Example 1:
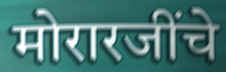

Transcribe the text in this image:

मोरारजींचे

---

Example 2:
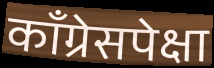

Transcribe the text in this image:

कॉंग्रेसपेक्षा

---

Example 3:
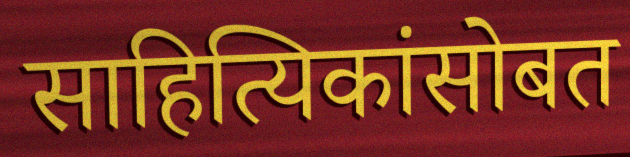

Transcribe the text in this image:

साहित्यिकांसोबत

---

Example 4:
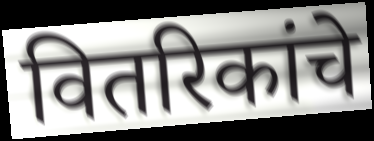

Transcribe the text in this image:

वितरिकांचे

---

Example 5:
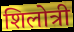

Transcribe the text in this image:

शिलोत्री